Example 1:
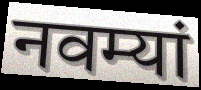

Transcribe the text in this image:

नवम्यां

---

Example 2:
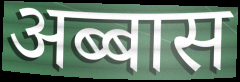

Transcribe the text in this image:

अब्बास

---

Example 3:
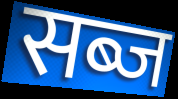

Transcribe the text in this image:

सब्ज़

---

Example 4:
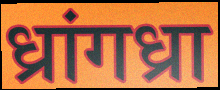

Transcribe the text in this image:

ध्रांगध्रा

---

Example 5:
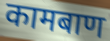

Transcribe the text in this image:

कामबाण